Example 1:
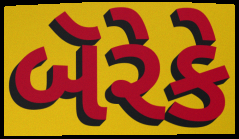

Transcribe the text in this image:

બૅરેકે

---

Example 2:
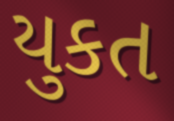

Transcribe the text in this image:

યુકત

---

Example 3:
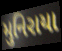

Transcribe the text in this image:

મુનિરાયા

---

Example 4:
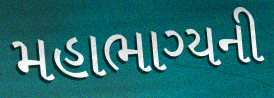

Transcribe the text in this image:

મહાભાગ્યની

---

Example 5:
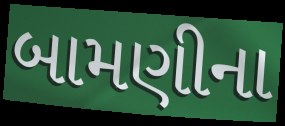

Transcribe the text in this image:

બામણીના